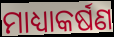
ମାଧ୍ୟାକର୍ଷଣ